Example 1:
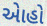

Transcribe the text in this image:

એાહો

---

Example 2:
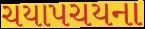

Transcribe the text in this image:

ચયાપચયના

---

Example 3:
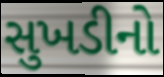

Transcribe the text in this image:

સુખડીનો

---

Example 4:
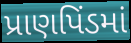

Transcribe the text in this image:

પ્રાણપિંડમાં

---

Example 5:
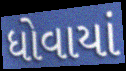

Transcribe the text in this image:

ધોવાયાં